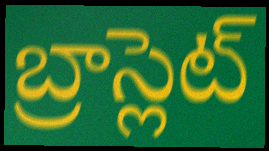
బ్రాస్లెట్